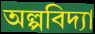
অল্পবিদ্যা